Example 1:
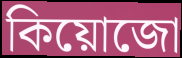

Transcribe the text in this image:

কিয়োজো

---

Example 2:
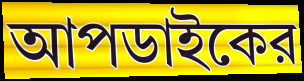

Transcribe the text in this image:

আপডাইকের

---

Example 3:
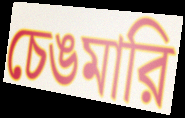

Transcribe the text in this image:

চেঙমারি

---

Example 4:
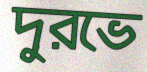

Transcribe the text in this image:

দুরভে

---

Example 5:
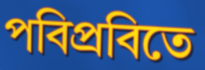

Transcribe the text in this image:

পবিপ্রবিতে